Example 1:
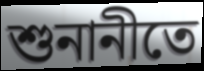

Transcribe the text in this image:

শুনানীতে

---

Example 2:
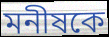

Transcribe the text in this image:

মনীষকে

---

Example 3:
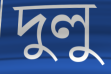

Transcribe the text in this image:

দুলু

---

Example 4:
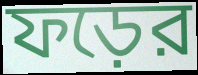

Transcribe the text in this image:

ফড়ের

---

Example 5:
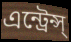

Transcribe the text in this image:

এন্ট্রেন্স্